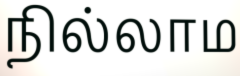
நில்லாம